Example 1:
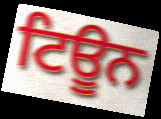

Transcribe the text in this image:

ਟਿਊਨ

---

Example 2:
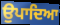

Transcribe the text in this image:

ਉਪਾਦਿਆ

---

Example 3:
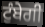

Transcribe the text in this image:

ਟੁੰਬੇਗੀ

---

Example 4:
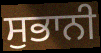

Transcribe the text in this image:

ਸੁਭਾਨੀ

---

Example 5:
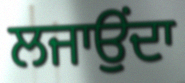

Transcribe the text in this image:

ਲਜਾਉਂਦਾ